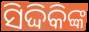
ସିଦ୍ଦିକିଙ୍କ